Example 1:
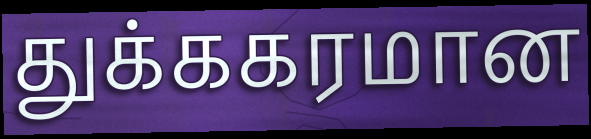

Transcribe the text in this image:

துக்ககரமான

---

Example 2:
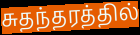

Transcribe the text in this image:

சுதந்தரத்தில்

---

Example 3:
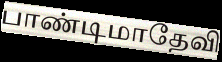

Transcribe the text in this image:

பாண்டிமாதேவி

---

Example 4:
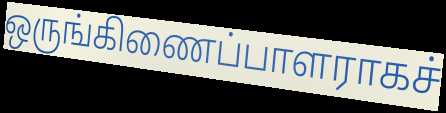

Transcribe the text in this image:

ஒருங்கிணைப்பாளராகச்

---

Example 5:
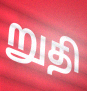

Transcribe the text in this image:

றுதி